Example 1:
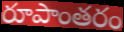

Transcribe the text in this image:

రూపాంతరం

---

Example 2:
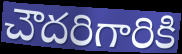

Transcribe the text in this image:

చౌదరిగారికి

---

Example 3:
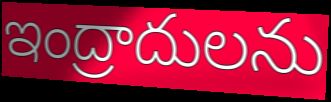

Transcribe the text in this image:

ఇంద్రాదులను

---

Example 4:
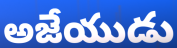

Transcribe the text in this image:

అజేయుడు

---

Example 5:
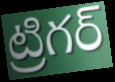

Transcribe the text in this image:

ట్రిగర్